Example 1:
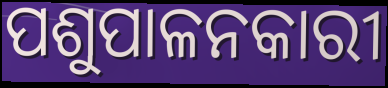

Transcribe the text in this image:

ପଶୁପାଳନକାରୀ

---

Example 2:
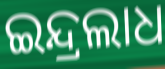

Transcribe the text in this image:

ଇନ୍ଦ୍ରଲାଧ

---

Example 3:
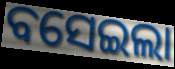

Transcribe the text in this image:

ବସେଇଲା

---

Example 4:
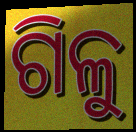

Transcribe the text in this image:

ଗିଳୁ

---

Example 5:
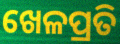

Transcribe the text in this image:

ଖେଳପ୍ରତି